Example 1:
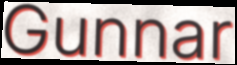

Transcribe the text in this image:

Gunnar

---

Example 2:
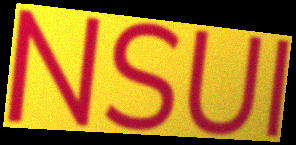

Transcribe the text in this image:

NSUI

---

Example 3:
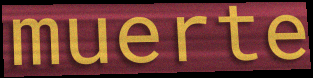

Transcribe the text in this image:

muerte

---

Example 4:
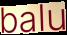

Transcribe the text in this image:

balu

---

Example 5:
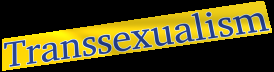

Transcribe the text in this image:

Transsexualism